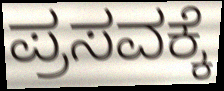
ಪ್ರಸವಕ್ಕೆ